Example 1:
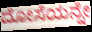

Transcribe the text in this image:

ದೋಸೆಯನ್ನೇ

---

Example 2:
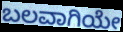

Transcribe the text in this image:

ಬಲವಾಗಿಯೇ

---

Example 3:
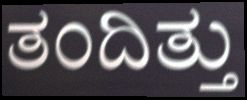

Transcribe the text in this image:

ತಂದಿತ್ತು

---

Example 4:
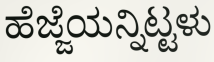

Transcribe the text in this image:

ಹೆಜ್ಜೆಯನ್ನಿಟ್ಟಳು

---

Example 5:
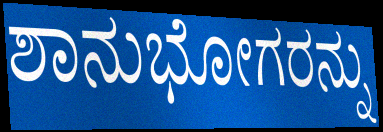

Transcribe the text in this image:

ಶಾನುಭೋಗರನ್ನು